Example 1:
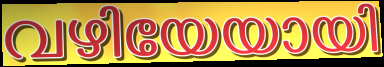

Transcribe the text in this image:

വഴിയേയായി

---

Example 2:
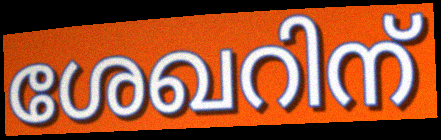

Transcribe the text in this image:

ശേഖറിന്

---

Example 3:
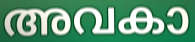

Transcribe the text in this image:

അവകാ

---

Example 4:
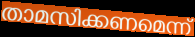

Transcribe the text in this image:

താമസിക്കണമെന്ന്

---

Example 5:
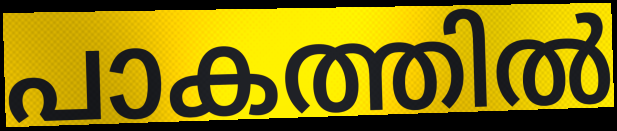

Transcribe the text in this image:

പാകത്തിൽ